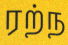
ரற்ந